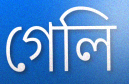
গেলি